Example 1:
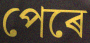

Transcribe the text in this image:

পেৰে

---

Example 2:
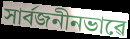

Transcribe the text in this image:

সাৰ্বজনীনভাৱে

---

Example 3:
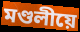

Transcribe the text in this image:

মণ্ডলীয়ে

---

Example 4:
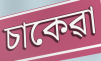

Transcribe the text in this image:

চাকেৱা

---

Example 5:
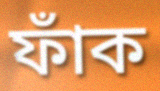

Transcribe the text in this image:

ফাঁক